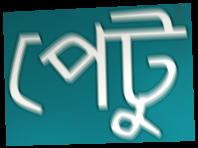
পেটু